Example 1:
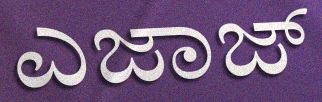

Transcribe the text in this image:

ಎಜಾಜ್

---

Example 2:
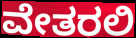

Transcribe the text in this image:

ವೇತರಲಿ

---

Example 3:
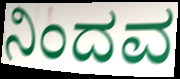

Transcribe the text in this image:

ನಿಂದವ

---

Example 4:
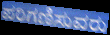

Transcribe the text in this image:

ಪರಿಗಣಿಸುವರು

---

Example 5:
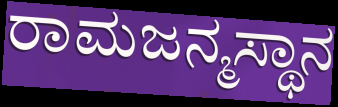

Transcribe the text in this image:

ರಾಮಜನ್ಮಸ್ಥಾನ